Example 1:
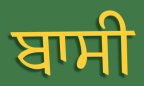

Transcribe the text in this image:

ਬਾਸੀ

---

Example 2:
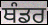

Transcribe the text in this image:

ਥੰਡਰ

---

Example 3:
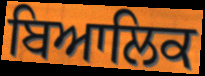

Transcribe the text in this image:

ਬਿਆਲਿਕ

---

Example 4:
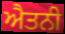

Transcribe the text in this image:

ਐਤਨੀ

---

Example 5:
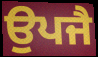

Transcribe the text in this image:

ਉਪਜੈ